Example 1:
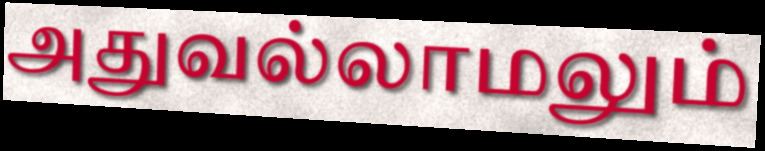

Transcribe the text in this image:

அதுவல்லாமலும்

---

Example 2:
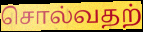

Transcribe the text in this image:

சொல்வதற்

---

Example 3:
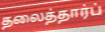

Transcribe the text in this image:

தலைத்தார்ப்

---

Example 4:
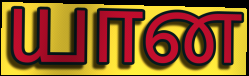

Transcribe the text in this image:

யான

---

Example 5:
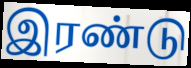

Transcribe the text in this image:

இரண்டு